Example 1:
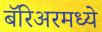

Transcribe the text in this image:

बॅरिअरमध्ये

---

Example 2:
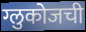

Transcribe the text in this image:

ग्लुकोजची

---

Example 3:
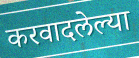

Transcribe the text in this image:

करवादलेल्या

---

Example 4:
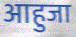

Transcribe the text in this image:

आहुजा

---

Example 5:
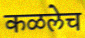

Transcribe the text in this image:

कळलेच